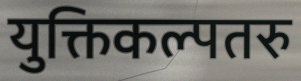
युक्तिकल्पतरु